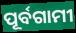
ପୂର୍ବଗାମୀ